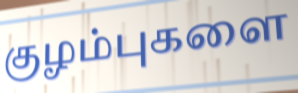
குழம்புகளை